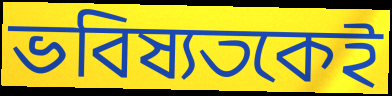
ভবিষ্যতকেই